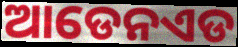
ଆଡେନଏଡ